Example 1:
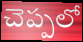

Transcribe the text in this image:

చెప్పలో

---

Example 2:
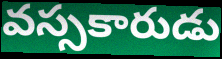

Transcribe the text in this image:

వస్సకారుడు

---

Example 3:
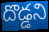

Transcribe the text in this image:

దొడ్డని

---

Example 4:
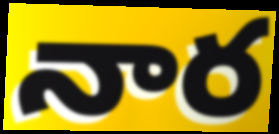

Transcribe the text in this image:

నార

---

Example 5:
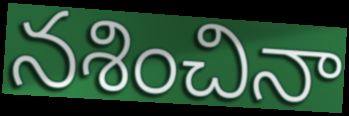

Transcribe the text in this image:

నశించినా